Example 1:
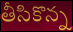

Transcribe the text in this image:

తీసికొన్న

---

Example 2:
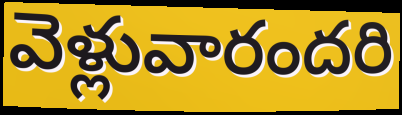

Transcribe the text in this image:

వెళ్లువారందరి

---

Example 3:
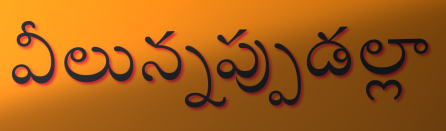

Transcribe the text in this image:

వీలున్నప్పుడల్లా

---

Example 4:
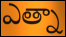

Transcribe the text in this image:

ఎత్నా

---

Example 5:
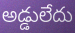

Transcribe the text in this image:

అడ్డులేదు